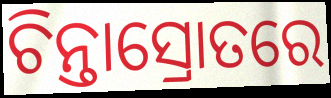
ଚିନ୍ତାସ୍ରୋତରେ